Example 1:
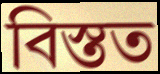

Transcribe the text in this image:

বিস্তত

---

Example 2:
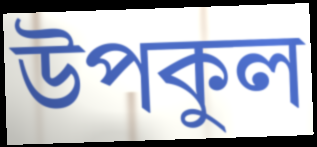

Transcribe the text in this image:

উপকুল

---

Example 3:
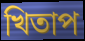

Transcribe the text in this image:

খিতাপ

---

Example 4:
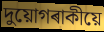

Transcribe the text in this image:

দুয়োগৰাকীয়ে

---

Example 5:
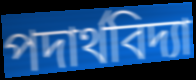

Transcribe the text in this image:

পদাৰ্থবিদ্যা